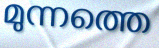
മുന്നത്തെ